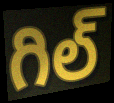
గిల్